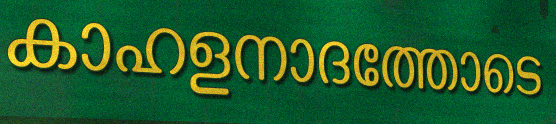
കാഹളനാദത്തോടെ